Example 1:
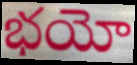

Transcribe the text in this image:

భయో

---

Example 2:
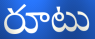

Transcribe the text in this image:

రూటు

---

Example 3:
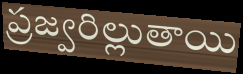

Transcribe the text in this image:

ప్రజ్వరిల్లుతాయి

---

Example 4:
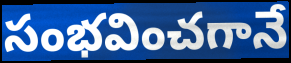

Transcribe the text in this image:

సంభవించగానే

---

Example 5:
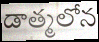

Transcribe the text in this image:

డాత్మలోన